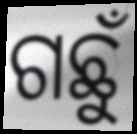
ଗଛୁଁ